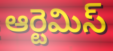
ఆర్టెమిస్